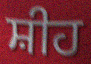
ਸ਼ੀਹ